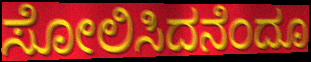
ಸೋಲಿಸಿದನೆಂದೂ